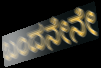
ಬಂದನೇನೇ